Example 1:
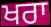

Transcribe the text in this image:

ਖਰਾ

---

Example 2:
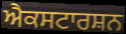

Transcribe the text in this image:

ਐਕਸਟਾਰਸ਼ਨ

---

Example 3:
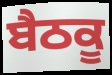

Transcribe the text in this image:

ਬੈਠਕੂ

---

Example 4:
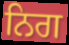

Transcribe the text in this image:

ਨਿਗ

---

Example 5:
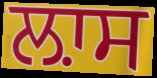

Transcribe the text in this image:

ਲ਼ਾਸ